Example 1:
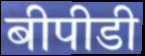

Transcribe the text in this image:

बीपीडी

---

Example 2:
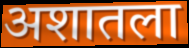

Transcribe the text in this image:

अशातला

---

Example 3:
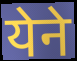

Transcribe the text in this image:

येने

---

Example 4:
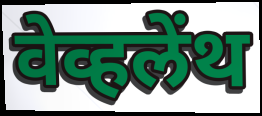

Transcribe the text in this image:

वेव्हलेंथ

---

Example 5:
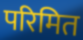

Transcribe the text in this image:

परिमित